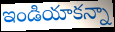
ఇండియాకన్నా